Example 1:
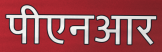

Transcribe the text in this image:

पीएनआर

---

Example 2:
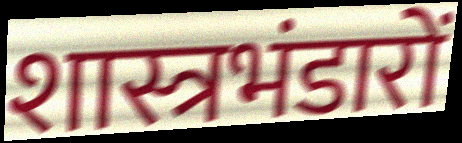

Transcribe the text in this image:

शास्त्रभंडारों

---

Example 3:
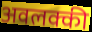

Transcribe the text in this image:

अवलक्की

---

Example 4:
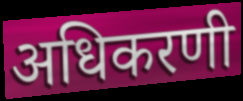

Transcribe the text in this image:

अधिकरणी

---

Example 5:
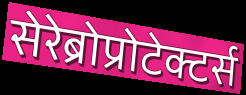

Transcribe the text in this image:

सेरेब्रोप्रोटेक्टर्स